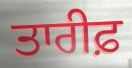
ਤਾਰੀਫ਼